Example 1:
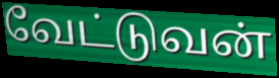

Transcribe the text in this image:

வேட்டுவன்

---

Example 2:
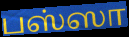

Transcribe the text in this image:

பஸ்ஸா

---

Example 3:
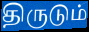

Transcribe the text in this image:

திருடும்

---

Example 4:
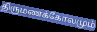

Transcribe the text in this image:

திருமணக்கோலமும்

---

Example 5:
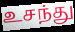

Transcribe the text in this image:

உசந்து